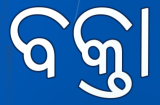
ବକ୍ତା